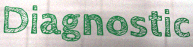
Diagnostic